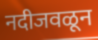
नदीजवळून